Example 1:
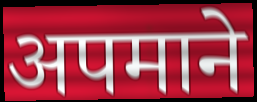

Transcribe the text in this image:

अपमाने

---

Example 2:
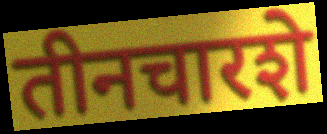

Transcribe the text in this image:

तीनचारशे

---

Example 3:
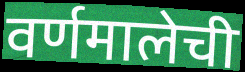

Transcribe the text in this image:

वर्णमालेची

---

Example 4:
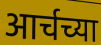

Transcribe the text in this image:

आर्चच्या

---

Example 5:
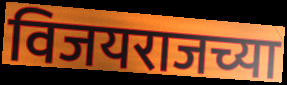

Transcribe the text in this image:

विजयराजच्या